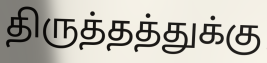
திருத்தத்துக்கு